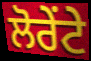
ਲੋਰੇਂਟੇ